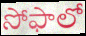
సోఫాలో